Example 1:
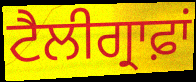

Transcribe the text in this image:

ਟੈਲੀਗ੍ਰਾਫ਼ਾਂ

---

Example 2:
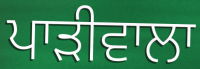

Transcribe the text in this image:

ਪਾੜੀਵਾਲਾ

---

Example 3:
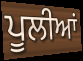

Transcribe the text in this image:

ਪੂਲੀਆਂ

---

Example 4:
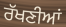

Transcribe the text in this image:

ਰੱਖਣੀਆਂ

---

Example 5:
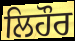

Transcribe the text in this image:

ਲਿਹੌਰ